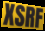
XSRF